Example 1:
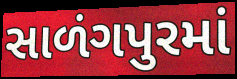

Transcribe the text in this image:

સાળંગપુરમાં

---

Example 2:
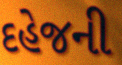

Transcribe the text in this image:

દહેજની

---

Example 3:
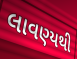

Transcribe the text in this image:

લાવણ્યથી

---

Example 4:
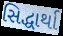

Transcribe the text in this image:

સિદ્ધાર્થા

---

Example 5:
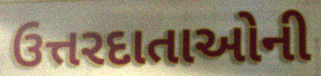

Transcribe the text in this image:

ઉત્તરદાતાઓની